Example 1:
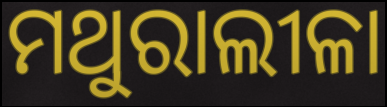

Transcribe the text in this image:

ମଥୁରାଲୀଳା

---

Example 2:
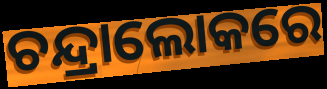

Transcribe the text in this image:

ଚନ୍ଦ୍ରାଲୋକରେ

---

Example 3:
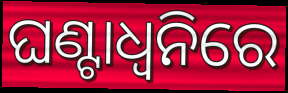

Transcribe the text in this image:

ଘଣ୍ଟାଧ୍ୱନିରେ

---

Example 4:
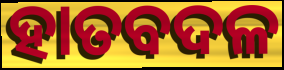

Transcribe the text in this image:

ହାତବଦଳ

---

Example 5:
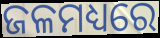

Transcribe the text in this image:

ଜଳମଧ୍ଯରେ